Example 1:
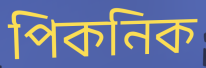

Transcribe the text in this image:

পিকনিক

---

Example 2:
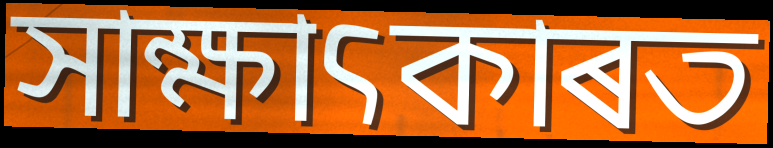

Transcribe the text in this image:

সাক্ষাৎকাৰত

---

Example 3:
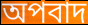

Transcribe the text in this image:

অপবাদ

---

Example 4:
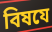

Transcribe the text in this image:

বিষযে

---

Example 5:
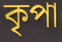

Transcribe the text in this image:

কৃপা